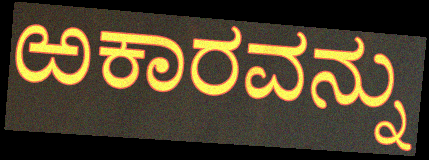
ಱಕಾರವನ್ನು